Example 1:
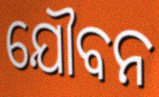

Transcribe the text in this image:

ଯୌବନ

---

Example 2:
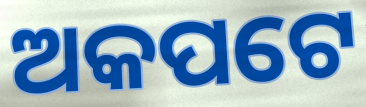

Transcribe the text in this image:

ଅକପଟେ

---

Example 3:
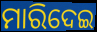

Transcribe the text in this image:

ମାରିଦେଇ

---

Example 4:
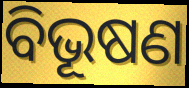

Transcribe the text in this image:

ବିଭୂଷଣ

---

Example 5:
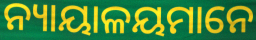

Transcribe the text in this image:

ନ୍ୟାୟାଳୟମାନେ